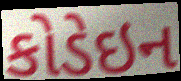
કોડેઇન